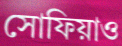
সোফিয়াও